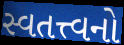
સ્વતત્ત્વનો